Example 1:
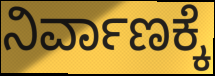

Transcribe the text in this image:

ನಿರ್ವಾಣಕ್ಕೆ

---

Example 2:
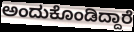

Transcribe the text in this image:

ಅಂದುಕೊಂಡಿದ್ದಾರೆ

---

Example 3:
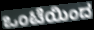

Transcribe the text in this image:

ಒಂಟೆಯಿಂದ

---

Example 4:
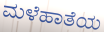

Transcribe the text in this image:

ಮಳೆಹಾತೆಯ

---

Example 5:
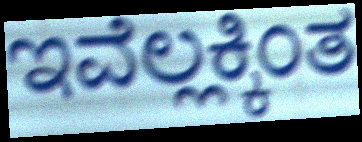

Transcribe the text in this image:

ಇವೆಲ್ಲಕ್ಕಿಂತ